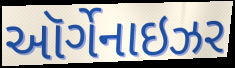
ઑર્ગેનાઇઝર